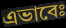
এভাবেঃ